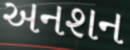
અનશન